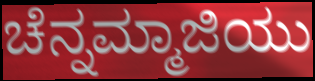
ಚೆನ್ನಮ್ಮಾಜಿಯು